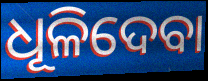
ଧୂଳିଦେବା